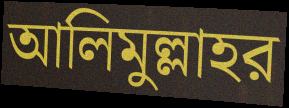
আলিমুল্লাহর